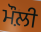
ਮੌਲ਼ੀ